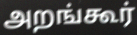
அறங்கூர்